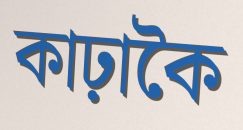
কাঢ়াকৈ